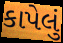
કાપેલું